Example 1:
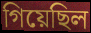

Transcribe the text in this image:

গিয়েছিল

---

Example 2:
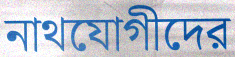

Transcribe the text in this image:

নাথযোগীদের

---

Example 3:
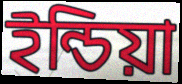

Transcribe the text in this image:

ইন্ডিয়া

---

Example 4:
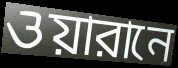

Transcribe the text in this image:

ওয়ারানে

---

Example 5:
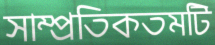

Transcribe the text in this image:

সাম্প্রতিকতমটি